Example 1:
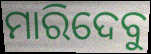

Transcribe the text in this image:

ମାରିଦେବୁ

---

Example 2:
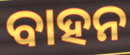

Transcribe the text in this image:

ବାହନ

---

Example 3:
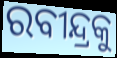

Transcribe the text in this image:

ରବୀନ୍ଦ୍ରକୁ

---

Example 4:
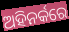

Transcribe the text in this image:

ଅହିନର୍କରେ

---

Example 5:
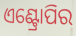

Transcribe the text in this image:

ଏଣ୍ଟ୍ରୋପିର